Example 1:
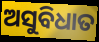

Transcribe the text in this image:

ଅସୁବିଧାତ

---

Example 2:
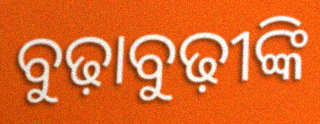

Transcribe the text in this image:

ବୁଢ଼ାବୁଢ଼ୀଙ୍କି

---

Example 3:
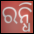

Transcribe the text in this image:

ରନ୍ଧି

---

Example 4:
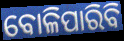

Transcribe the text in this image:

ବୋଳିପାରିବି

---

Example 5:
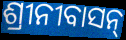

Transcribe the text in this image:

ଶ୍ରୀନୀବାସନ୍